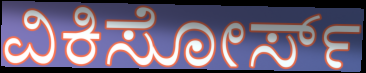
ವಿಕಿಸೋರ್ಸ್